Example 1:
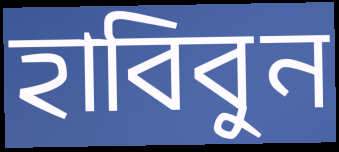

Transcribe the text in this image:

হাবিবুন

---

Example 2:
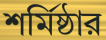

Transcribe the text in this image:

শর্মিষ্ঠার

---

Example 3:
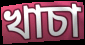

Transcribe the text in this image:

খাচা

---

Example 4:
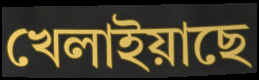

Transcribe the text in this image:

খেলাইয়াছে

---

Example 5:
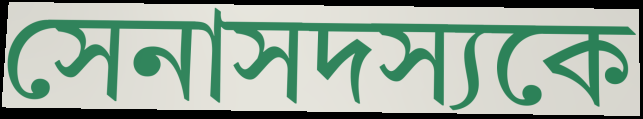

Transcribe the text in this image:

সেনাসদস্যকে